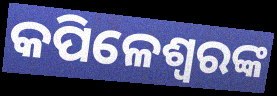
କପିଳେଶ୍ବରଙ୍କ